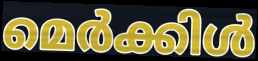
മെർക്കിൾ